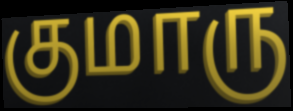
குமாரு